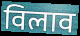
विलाव